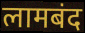
लामबंद